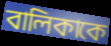
বালিকাকে